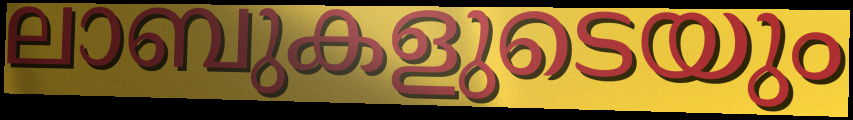
ലാബുകളുടെയും